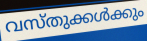
വസ്തുക്കൾക്കും